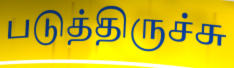
படுத்திருச்சு